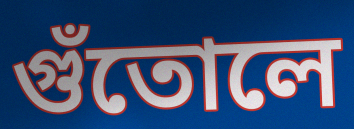
গুঁতোলে